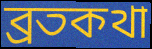
ব্রতকথা